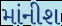
માંનીશ